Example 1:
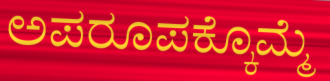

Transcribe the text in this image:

ಅಪರೂಪಕ್ಕೊಮ್ಮೆ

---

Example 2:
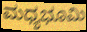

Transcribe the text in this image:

ಮಧ್ಯಭೂಮಿ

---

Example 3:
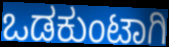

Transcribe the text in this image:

ಒಡಕುಂಟಾಗಿ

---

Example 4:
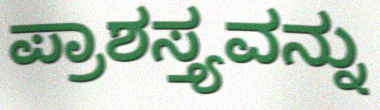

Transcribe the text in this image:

ಪ್ರಾಶಸ್ತ್ಯವನ್ನು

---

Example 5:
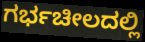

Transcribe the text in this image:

ಗರ್ಭಚೀಲದಲ್ಲಿ